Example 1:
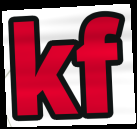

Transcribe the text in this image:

kf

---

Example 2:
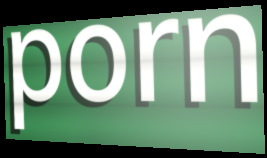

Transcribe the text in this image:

porn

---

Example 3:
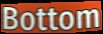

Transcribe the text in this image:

Bottom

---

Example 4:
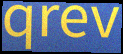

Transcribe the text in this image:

qrev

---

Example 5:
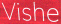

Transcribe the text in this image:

Vishe